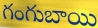
గంగుబాయి